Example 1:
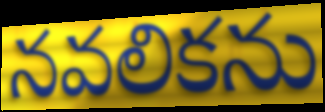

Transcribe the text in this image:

నవలికను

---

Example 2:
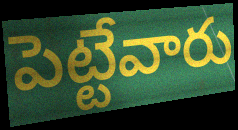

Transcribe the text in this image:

పెట్టేవారు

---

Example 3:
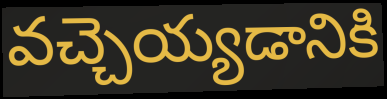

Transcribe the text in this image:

వచ్చెయ్యడానికి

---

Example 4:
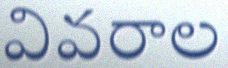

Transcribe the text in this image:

వివరాల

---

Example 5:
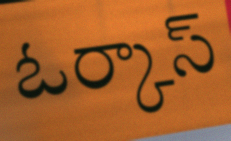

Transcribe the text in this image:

ఓర్కాస్